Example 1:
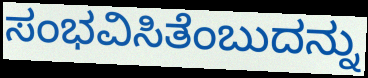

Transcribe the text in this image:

ಸಂಭವಿಸಿತೆಂಬುದನ್ನು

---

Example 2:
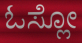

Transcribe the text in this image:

ಓಸ್ಲೋ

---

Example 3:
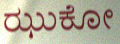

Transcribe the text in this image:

ಝುಕೋ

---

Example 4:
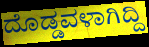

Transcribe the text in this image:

ದೊಡ್ಡವಳಾಗಿದ್ದಿ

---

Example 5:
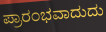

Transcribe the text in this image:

ಪ್ರಾರಂಭವಾದುದು